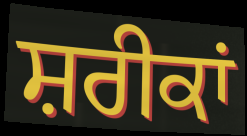
ਸ਼ਰੀਕਾਂ